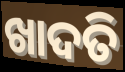
ଖାଦତି